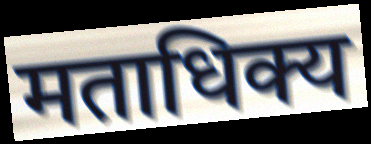
मताधिक्य